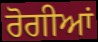
ਰੋਗੀਆਂ